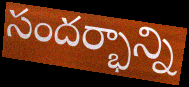
సందర్భాన్ని